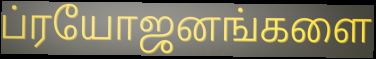
ப்ரயோஜனங்களை